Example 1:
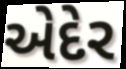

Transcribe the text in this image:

એદેર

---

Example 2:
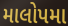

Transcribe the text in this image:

માલોપમા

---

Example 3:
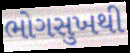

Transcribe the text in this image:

ભોગસુખથી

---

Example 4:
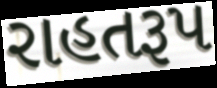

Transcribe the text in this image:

રાહતરૂપ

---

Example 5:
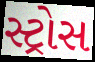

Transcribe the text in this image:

સ્ટ્રોસ